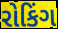
રોકિંગ